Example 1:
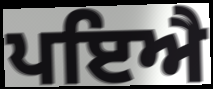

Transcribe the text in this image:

ਪਇਐ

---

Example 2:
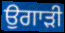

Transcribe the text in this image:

ਉਗਾੜੀ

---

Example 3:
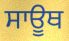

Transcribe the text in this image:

ਸਾਊਥ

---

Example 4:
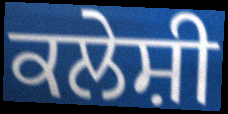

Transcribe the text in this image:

ਕਲੇਸ਼ੀ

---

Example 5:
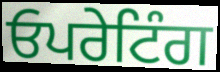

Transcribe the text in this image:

ਓਪਰੇਟਿੰਗ